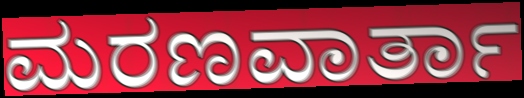
ಮರಣವಾರ್ತಾ